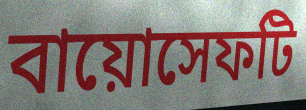
বায়োসেফটি